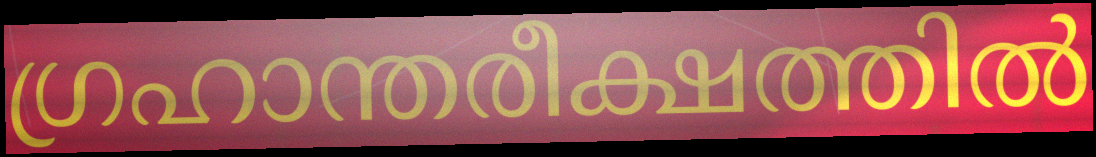
ഗ്രഹാന്തരീക്ഷത്തിൽ